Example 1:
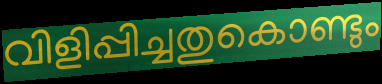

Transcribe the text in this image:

വിളിപ്പിച്ചതുകൊണ്ടും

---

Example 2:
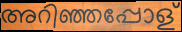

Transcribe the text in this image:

അറിഞ്ഞപ്പോള്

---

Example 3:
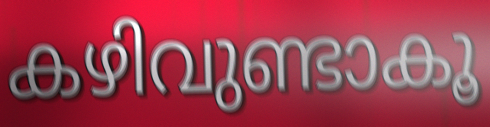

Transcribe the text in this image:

കഴിവുണ്ടാകൂ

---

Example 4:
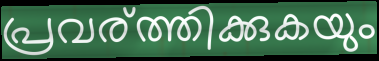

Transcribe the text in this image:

പ്രവര്ത്തിക്കുകയും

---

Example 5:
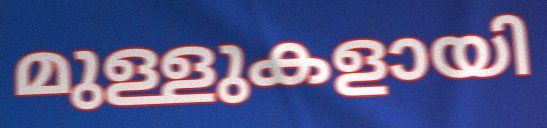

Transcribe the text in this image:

മുള്ളുകളായി